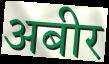
अबीर